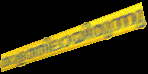
താളത്തിലായിരുന്നു